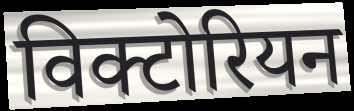
विक्टोरियन